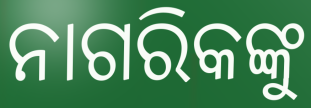
ନାଗରିକଙ୍କୁ